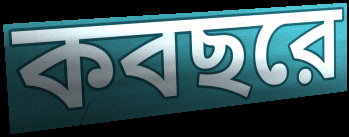
কবছরে